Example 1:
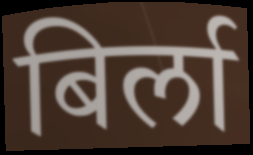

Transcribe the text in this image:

बिर्ला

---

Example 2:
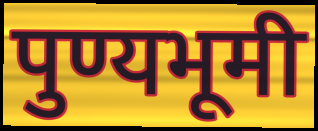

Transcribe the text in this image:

पुण्यभूमी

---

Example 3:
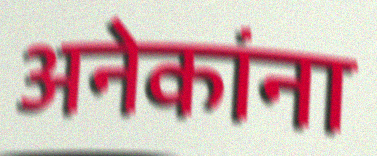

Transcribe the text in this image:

अनेकांना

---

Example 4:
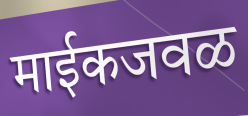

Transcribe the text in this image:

माईकजवळ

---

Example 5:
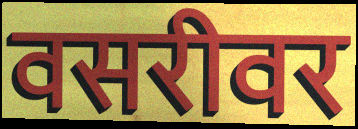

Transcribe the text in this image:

वसरीवर